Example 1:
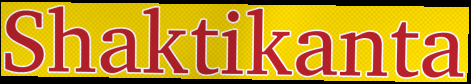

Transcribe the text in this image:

Shaktikanta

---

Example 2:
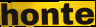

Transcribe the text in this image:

honte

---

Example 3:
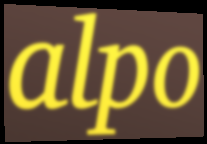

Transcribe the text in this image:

alpo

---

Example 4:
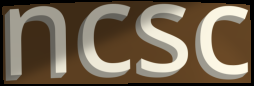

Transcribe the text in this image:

ncsc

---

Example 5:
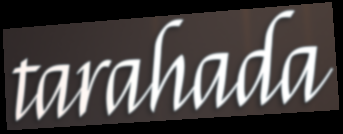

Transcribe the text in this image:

tarahada